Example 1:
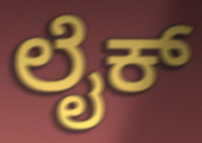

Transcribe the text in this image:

ಲೈಕ್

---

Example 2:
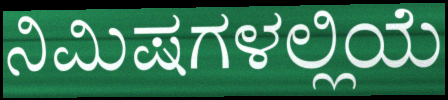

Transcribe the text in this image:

ನಿಮಿಷಗಳಲ್ಲಿಯೆ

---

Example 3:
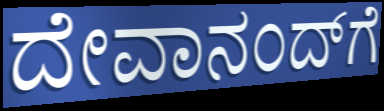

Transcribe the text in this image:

ದೇವಾನಂದ್‌ಗೆ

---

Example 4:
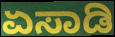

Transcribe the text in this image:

ಏಸಾಡಿ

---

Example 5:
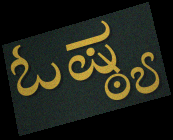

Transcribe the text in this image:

ಓಷ್ಠ್ಯ